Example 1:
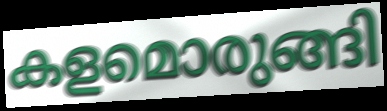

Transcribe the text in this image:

കളമൊരുങ്ങി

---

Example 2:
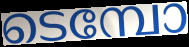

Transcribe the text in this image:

ടെമ്പോ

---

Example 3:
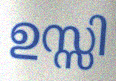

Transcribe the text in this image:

ഉസ്സി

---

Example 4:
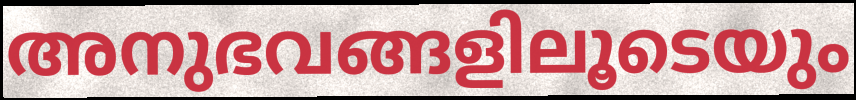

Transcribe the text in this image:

അനുഭവങ്ങളിലൂടെയും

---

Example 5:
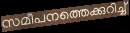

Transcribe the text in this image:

സമീപനത്തെക്കുറിച്ച്